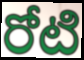
రోటి